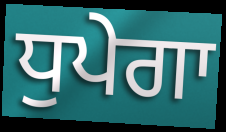
ਧੁਪੇਗਾ